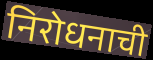
निरोधनाची